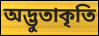
অদ্ভুতাকৃতি